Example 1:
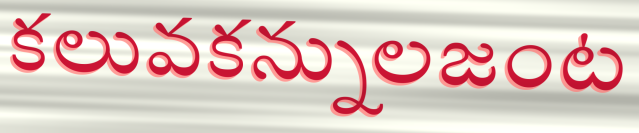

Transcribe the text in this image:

కలువకన్నులజంట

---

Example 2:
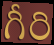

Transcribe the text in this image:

గీరి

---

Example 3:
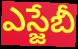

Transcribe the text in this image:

ఎస్జేబీ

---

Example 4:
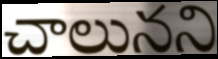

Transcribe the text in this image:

చాలునని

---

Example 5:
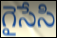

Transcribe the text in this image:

గైసేసి